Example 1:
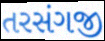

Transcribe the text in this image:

તરસંગજી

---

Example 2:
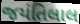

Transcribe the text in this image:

જયંતિલાલ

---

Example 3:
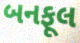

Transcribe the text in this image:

બનફૂલ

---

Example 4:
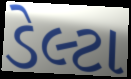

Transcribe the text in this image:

ડેલ્ટા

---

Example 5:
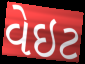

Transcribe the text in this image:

વેઇટ